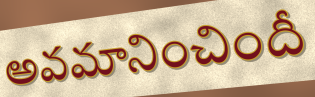
అవమానించిందీ